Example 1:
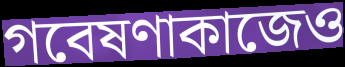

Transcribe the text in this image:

গবেষণাকাজেও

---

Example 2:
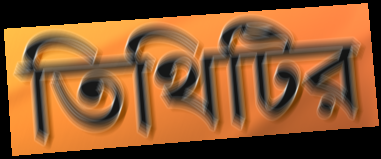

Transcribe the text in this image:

তিথিটির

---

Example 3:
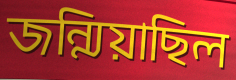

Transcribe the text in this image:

জন্মিয়াছিল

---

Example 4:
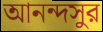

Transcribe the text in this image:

আনন্দসুর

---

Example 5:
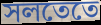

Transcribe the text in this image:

সলতেতে